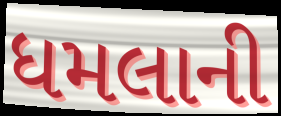
ધમલાની